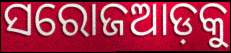
ସରୋଜଆଡ଼କୁ